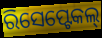
ରିସେପ୍ଟେକଲ୍